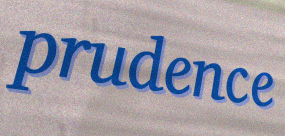
prudence